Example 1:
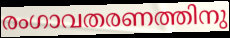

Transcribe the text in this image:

രംഗാവതരണത്തിനു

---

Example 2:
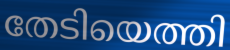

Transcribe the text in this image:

തേടിയെത്തി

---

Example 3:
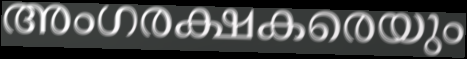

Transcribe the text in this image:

അംഗരക്ഷകരെയും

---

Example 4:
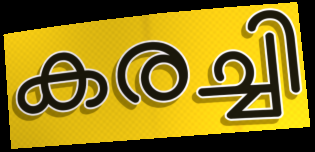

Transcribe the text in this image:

കരച്ചി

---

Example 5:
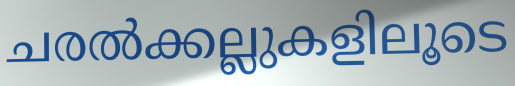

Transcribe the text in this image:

ചരൽക്കല്ലുകളിലൂടെ